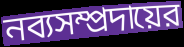
নব্যসম্প্রদায়ের